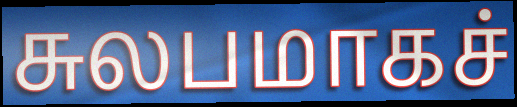
சுலபமாகச்